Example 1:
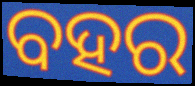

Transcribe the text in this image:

ବହର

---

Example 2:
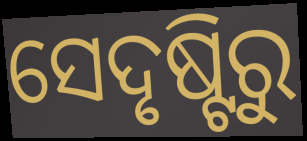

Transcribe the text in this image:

ସେଦୃଷ୍ଟିରୁ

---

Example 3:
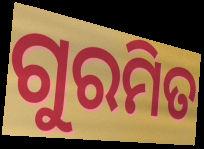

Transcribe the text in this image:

ଗୁରମିତ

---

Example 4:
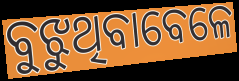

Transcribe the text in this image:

ବୁଝୁଥିବାବେଳେ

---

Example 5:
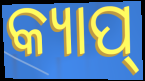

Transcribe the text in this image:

କ୍ୟାପ୍